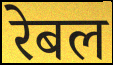
रेबल